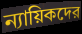
ন্যায়িকদের